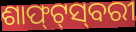
ଶାଫ୍‍ଟ୍‍ସ୍‍ବରୀ